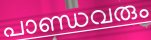
പാണ്ഡവരും